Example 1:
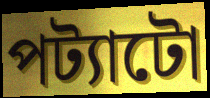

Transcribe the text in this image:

পট্যাটো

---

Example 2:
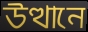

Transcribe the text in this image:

উত্থানে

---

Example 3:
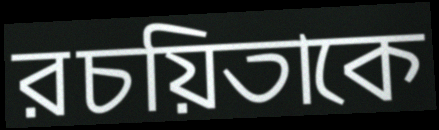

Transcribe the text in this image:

রচয়িতাকে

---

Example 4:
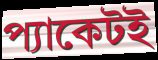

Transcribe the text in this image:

প্যাকেটই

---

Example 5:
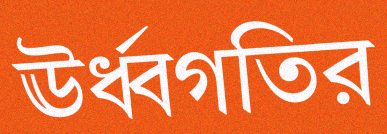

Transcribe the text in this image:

ঊর্ধ্বগতির